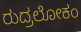
ರುದ್ರಲೋಕಂ